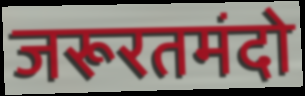
जरूरतमंदो